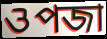
ওপজা